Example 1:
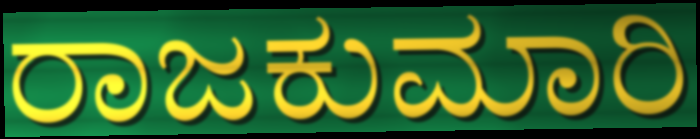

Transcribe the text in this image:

ರಾಜಕುಮಾರಿ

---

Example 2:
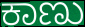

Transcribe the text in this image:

ಕಾಣು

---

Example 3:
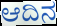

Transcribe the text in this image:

ಆದಿನ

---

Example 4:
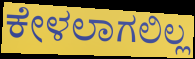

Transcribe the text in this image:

ಕೇಳಲಾಗಲಿಲ್ಲ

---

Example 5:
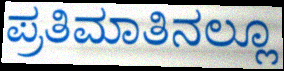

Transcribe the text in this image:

ಪ್ರತಿಮಾತಿನಲ್ಲೂ